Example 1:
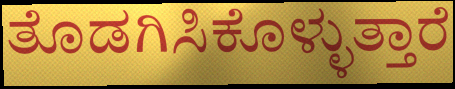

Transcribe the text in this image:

ತೊಡಗಿಸಿಕೊಳ್ಳುತ್ತಾರೆ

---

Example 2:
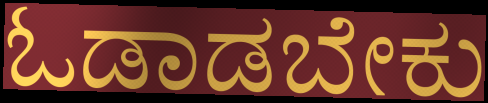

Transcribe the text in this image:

ಓಡಾಡಬೇಕು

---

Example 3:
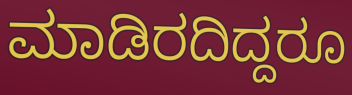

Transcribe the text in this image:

ಮಾಡಿರದಿದ್ದರೂ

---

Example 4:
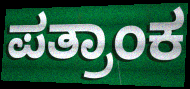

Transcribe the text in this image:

ಪತ್ರಾಂಕ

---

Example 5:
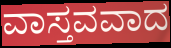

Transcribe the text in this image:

ವಾಸ್ತವವಾದ